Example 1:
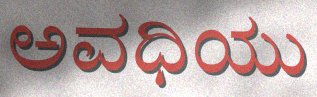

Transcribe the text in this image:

ಅವಧಿಯು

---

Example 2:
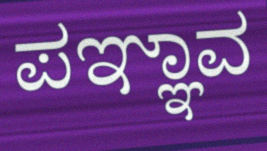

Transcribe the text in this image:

ಪಞ್ಞಾವ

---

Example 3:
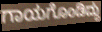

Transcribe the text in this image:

ಗಾಯಗೊಂಡಿದ್ದು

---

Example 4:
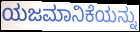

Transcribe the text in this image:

ಯಜಮಾನಿಕೆಯನ್ನು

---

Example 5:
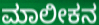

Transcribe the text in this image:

ಮಾಲೀಕನ